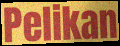
Pelikan